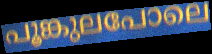
പൂങ്കുലപോലെ